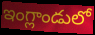
ఇంగ్లాండులో